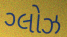
ગ્લોઝ